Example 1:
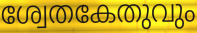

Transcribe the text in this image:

ശ്വേതകേതുവും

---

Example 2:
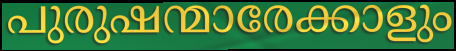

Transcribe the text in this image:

പുരുഷന്മാരേക്കാളും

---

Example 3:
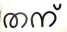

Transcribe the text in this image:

തന്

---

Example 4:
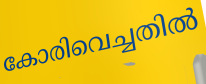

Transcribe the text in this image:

കോരിവെച്ചതിൽ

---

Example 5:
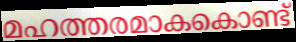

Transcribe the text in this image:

മഹത്തരമാകകൊണ്ട്